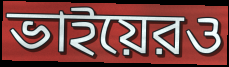
ভাইয়েরও